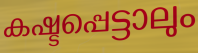
കഷ്ടപ്പെട്ടാലും